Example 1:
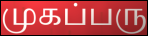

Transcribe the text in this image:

முகப்பரு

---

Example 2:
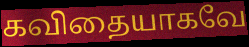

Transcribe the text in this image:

கவிதையாகவே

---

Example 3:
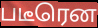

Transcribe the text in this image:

படீரென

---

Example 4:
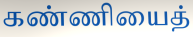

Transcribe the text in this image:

கண்ணியைத்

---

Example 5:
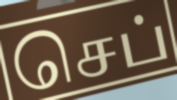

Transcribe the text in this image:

செப்